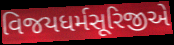
વિજયધર્મસૂરિજીએ